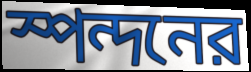
স্পন্দনের